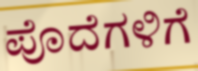
ಪೊದೆಗಳಿಗೆ